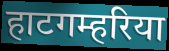
हाटगम्हरिया